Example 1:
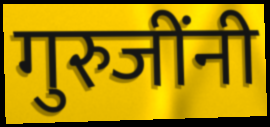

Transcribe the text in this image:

गुरुजींनी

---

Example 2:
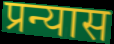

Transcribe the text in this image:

प्रन्यास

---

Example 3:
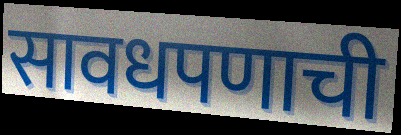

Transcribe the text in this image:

सावधपणाची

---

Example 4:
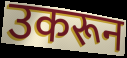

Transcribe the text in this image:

उकरून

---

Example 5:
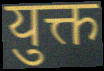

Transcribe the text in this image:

युक्त